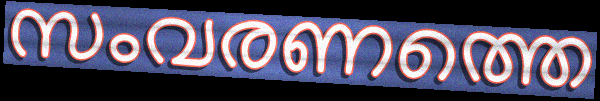
സംവരണത്തെ